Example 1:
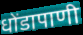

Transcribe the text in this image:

धोंडापाणी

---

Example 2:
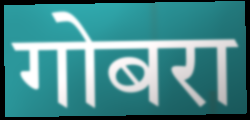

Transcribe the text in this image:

गोबरा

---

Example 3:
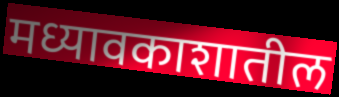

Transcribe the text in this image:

मध्यावकाशातील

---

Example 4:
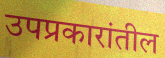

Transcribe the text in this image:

उपप्रकारांतील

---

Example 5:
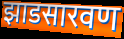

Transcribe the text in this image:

झाडसारवण